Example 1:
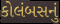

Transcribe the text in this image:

કોલંબસનું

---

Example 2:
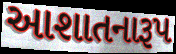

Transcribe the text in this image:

આશાતનારૂપ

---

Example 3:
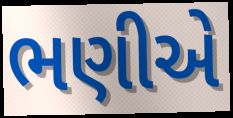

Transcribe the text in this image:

ભણીએ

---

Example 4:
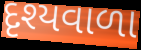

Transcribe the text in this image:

દૃશ્યવાળા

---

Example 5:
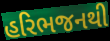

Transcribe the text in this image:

હરિભજનથી